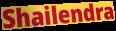
Shailendra